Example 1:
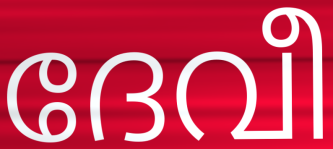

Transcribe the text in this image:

ദേവീ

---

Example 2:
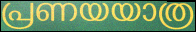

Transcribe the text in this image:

പ്രണയയാത്ര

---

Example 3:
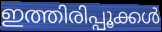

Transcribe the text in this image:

ഇത്തിരിപ്പൂക്കൾ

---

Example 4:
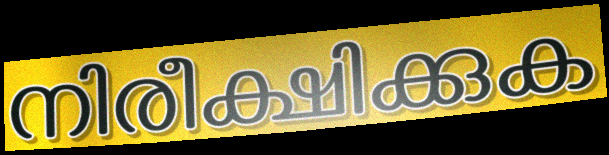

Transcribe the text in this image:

നിരീക്ഷിക്കുക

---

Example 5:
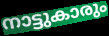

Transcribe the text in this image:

നാട്ടുകാരും